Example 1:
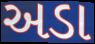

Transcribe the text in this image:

અડા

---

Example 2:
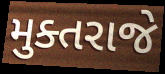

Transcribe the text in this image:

મુક્તરાજે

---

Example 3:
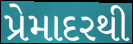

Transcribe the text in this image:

પ્રેમાદરથી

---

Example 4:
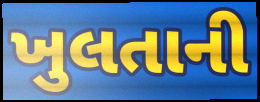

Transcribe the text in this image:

ખુલતાની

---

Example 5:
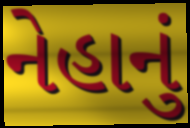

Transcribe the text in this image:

નેહાનું